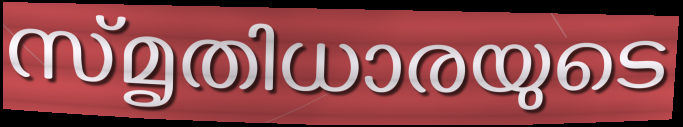
സ്മൃതിധാരയുടെ